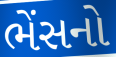
ભેંસનો